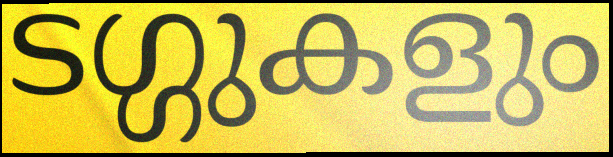
ടഗ്ഗുകളും